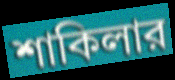
শাকিলার